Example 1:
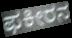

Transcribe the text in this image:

ಫಕೀರನ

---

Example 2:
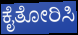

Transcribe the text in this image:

ಕೈತೋರಿಸಿ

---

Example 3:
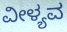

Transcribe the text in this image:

ವೀಳ್ಯವ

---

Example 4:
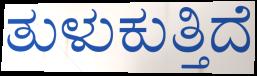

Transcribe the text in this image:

ತುಳುಕುತ್ತಿದೆ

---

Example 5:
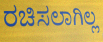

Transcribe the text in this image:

ರಚಿಸಲಾಗಿಲ್ಲ